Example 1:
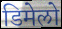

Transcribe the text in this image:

डिमेलो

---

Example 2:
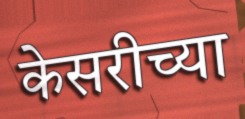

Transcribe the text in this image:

केसरीच्या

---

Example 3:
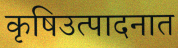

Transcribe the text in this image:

कृषिउत्पादनात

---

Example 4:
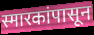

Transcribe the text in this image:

स्मारकांपासून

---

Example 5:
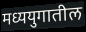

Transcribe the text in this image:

मध्ययुगातील